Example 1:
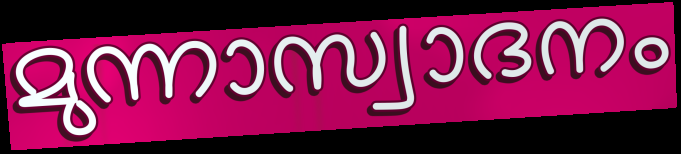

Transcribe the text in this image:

മുന്നാസ്വാദനം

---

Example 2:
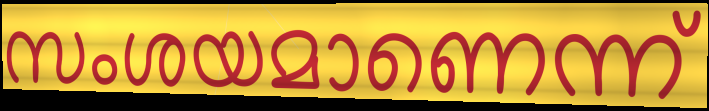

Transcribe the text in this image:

സംശയമാണെന്ന്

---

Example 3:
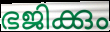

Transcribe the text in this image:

ഭജിക്കും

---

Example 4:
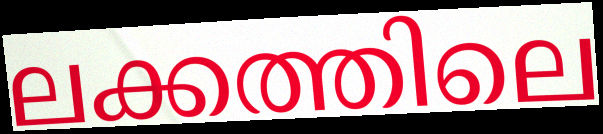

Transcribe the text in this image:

ലക്കത്തിലെ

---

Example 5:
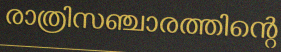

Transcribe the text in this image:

രാത്രിസഞ്ചാരത്തിന്റെ